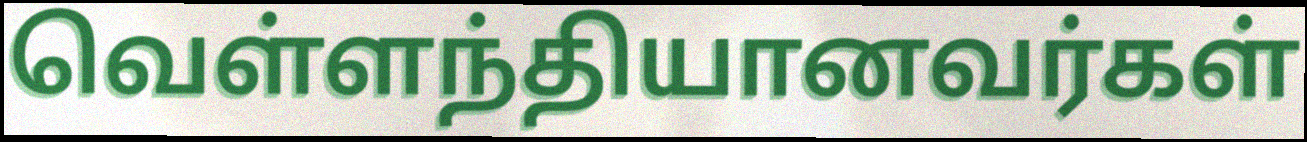
வெள்ளந்தியானவர்கள்